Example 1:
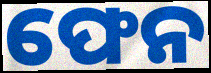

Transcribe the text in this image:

ଫେନ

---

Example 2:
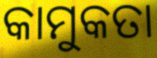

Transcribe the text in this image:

କାମୁକତା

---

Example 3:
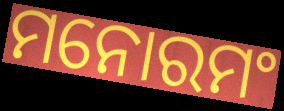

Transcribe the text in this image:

ମନୋରମଂ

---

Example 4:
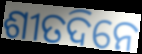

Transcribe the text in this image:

ଶୀତଦିନେ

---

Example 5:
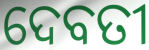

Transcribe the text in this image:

ଦେବତୀ